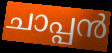
ചാപ്പൻ